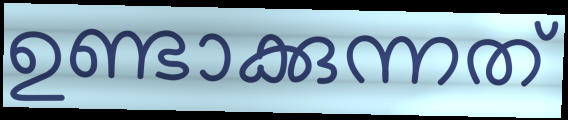
ഉണ്ടാക്കുന്നത്